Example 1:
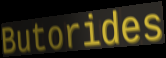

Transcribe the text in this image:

Butorides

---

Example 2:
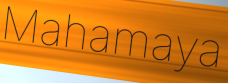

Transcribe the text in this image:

Mahamaya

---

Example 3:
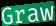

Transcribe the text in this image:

Graw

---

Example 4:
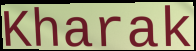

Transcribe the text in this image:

Kharak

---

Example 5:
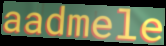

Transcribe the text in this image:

aadmele